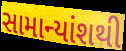
સામાન્યાંશથી